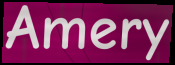
Amery